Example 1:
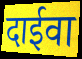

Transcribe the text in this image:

दाईवा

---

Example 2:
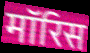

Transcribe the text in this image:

मॉरिस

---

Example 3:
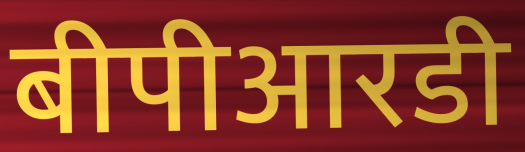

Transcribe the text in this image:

बीपीआरडी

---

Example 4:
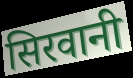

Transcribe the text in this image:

सिरवानी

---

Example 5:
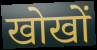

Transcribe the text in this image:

खोखों